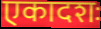
एकादशः